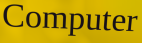
Computer